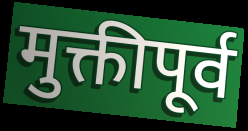
मुक्तीपूर्व